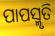
ପାପସ୍ମୃତି